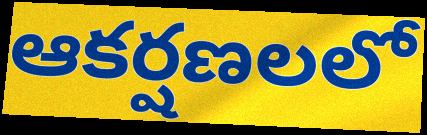
ఆకర్షణలలో